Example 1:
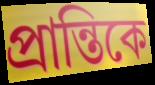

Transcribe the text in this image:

প্রান্তিকে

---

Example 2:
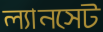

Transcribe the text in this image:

ল্যানসেট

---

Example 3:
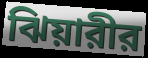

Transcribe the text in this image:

ঝিয়ারীর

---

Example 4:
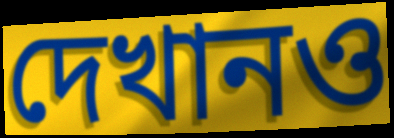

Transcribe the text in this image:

দেখানও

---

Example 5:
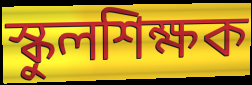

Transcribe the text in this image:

স্কুলশিক্ষক